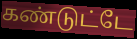
கண்டுட்டே